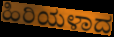
ಹಿರಿಯಳಾದ